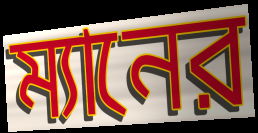
ম্যানের